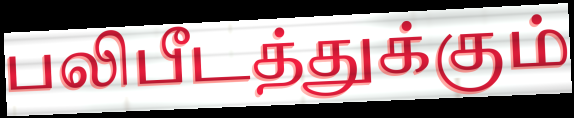
பலிபீடத்துக்கும்